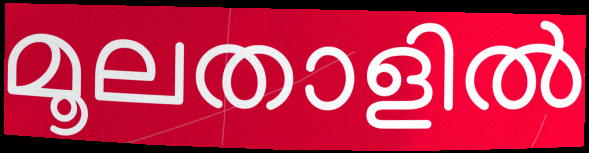
മൂലതാളിൽ